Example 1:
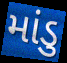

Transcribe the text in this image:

માંડુ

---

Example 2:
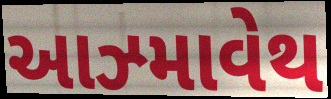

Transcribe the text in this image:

આઝ્માવેથ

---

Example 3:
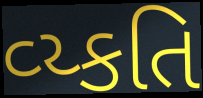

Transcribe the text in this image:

વ્ય્કતિ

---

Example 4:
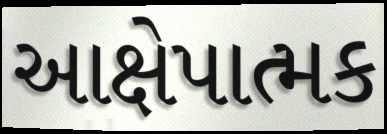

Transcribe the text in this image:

આક્ષેપાત્મક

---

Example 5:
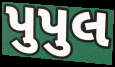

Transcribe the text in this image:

પુપુલ